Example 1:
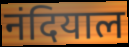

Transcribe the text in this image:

नंदियाल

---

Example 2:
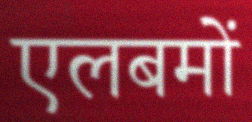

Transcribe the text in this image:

एलबमों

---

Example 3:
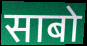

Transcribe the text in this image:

साबो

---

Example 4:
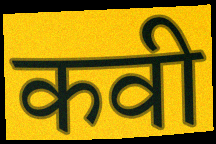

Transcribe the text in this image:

कवी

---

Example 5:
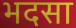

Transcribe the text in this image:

भदसा